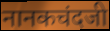
नानकचंदजी